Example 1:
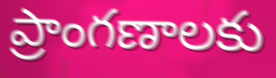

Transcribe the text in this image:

ప్రాంగణాలకు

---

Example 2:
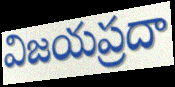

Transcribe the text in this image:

విజయప్రదా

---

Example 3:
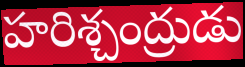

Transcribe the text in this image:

హరిశ్చంద్రుడు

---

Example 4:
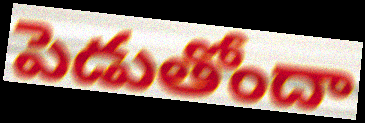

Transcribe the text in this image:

పెడుతోందా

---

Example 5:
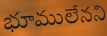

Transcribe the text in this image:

భూములేనని